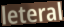
leteral